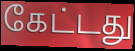
கேட்டது